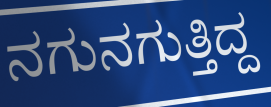
ನಗುನಗುತ್ತಿದ್ದ